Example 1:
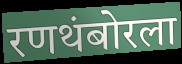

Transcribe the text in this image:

रणथंबोरला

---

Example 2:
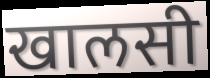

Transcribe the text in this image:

खालसी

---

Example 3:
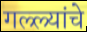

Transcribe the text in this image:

गल्ल्यांचे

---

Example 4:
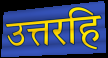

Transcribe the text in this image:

उत्तरहि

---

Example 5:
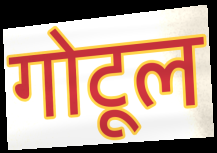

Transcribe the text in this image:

गोटूल